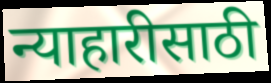
न्याहारीसाठी